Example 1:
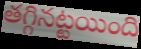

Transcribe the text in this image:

తగ్గినట్టయింది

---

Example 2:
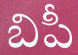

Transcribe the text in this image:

బిపీ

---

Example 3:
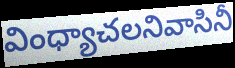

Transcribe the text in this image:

వింధ్యాచలనివాసినీ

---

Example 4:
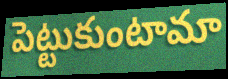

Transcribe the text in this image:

పెట్టుకుంటామా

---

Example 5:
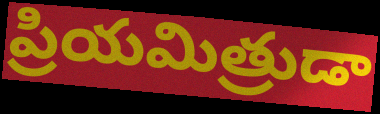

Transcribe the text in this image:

ప్రియమిత్రుడా